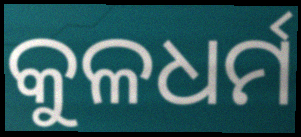
କୁଳଧର୍ମ